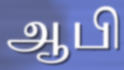
ஆபி